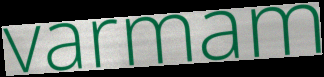
varmam